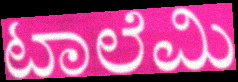
ಟಾಲೆಮಿ